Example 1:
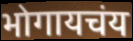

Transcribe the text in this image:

भोगायचंय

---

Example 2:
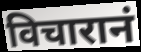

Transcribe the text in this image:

विचारानं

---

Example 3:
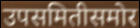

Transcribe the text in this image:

उपसमितीसमोर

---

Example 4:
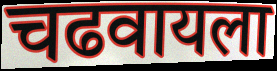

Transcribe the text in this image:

चढवायला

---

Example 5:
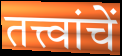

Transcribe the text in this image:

तत्त्वांचें